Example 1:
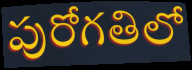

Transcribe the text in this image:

పురోగతిలో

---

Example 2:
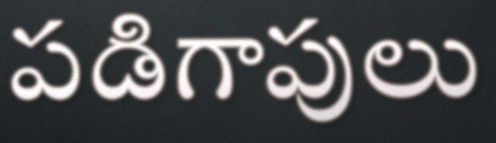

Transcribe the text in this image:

పడిగాపులు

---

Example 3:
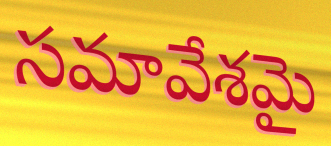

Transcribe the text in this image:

సమావేశమై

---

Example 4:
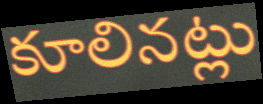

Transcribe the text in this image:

కూలినట్లు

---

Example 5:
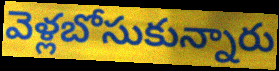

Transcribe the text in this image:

వెళ్లబోసుకున్నారు